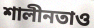
শালীনতাও